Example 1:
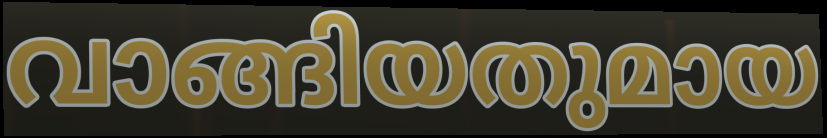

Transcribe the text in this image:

വാങ്ങിയതുമായ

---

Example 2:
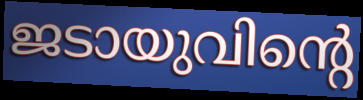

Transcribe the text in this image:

ജടായുവിന്റെ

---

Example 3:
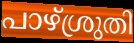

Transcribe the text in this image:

പാഴ്ശ്രുതി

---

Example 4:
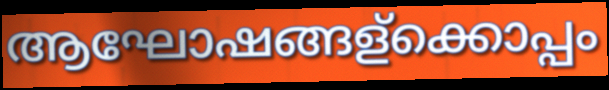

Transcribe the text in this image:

ആഘോഷങ്ങള്ക്കൊപ്പം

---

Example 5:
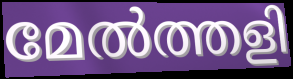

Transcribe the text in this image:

മേൽത്തളി